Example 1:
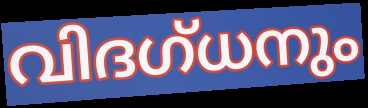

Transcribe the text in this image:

വിദഗ്ധനും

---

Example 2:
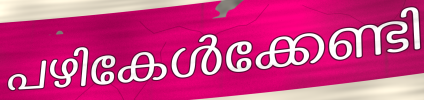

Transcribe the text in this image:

പഴികേൾക്കേണ്ടി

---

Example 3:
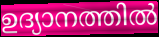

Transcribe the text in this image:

ഉദ്യാനത്തിൽ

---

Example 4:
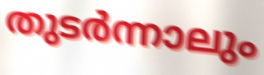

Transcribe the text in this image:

തുടർന്നാലും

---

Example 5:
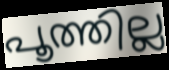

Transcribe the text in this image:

പൂത്തില്ല